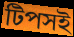
টিপসই